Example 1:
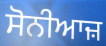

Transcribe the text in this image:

ਸੋਨੀਆਜ਼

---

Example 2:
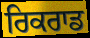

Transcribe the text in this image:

ਰਿਕਰਾਡ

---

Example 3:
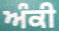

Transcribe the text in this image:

ਅੰਕੀ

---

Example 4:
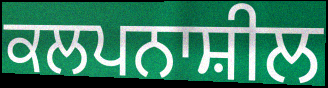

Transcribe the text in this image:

ਕਲਪਨਾਸ਼ੀਲ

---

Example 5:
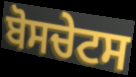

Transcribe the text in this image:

ਬੋਸਚੇਟਸ